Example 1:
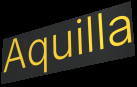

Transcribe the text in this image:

Aquilla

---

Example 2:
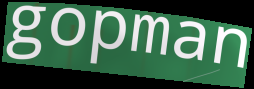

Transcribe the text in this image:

gopman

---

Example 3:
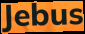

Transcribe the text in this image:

Jebus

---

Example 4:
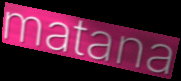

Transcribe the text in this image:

matana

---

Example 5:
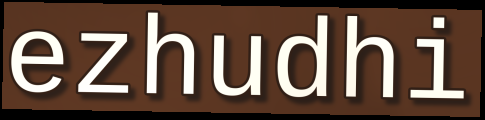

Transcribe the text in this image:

ezhudhi